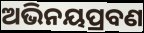
ଅଭିନୟପ୍ରବଣ